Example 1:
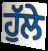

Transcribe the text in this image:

ਹੁੱਲੇ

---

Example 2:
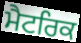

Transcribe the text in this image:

ਮੈਟਰਿਕ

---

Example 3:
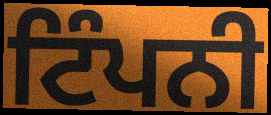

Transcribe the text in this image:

ਟਿੰਪਨੀ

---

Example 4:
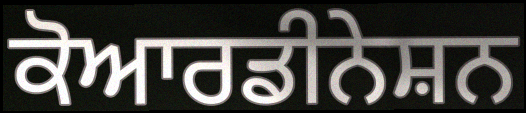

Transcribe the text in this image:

ਕੋਆਰਡੀਨੇਸ਼ਨ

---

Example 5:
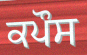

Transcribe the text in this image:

ਕਪੌਸ